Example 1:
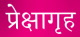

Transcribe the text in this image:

प्रेक्षागृह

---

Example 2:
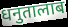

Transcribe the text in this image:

धनुतालाब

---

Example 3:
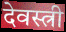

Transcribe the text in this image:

देवस्त्री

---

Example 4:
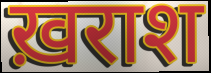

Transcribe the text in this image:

ख़राश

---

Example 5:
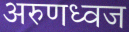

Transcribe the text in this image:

अरुणध्वज